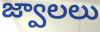
జ్వాలలు